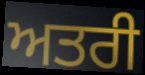
ਅਤਰੀ